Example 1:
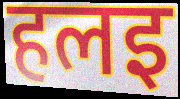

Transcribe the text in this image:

हलइ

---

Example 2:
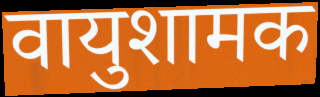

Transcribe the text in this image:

वायुशामक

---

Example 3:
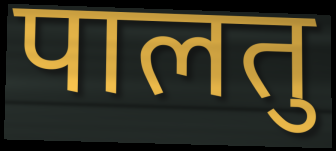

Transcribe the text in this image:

पालतु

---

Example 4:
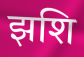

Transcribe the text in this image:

झशि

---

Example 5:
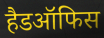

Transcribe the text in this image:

हैडऑफिस